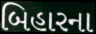
બિહારના